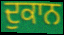
ਦੁਕਾਨ